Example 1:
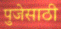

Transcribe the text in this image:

पुजेसाठी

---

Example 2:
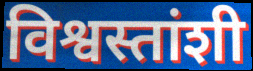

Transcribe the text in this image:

विश्वस्तांशी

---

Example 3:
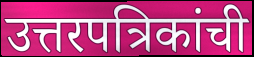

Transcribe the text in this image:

उत्तरपत्रिकांची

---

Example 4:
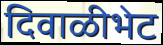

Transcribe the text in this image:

दिवाळीभेट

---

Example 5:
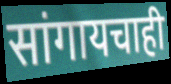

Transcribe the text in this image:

सांगायचाही